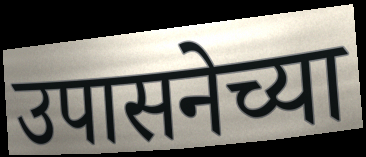
उपासनेच्या